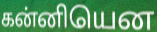
கன்னியென